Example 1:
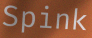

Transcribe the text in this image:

Spink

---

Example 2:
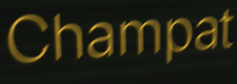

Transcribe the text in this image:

Champat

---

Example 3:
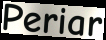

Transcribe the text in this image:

Periar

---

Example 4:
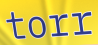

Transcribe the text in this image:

torr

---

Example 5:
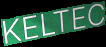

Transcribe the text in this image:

KELTEC